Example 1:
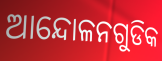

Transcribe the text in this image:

ଆନ୍ଦୋଳନଗୁଡିକ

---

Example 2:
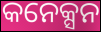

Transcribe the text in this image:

କନେକ୍ସନ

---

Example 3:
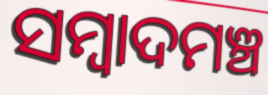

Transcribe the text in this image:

ସମ୍ୱାଦମଞ୍ଚ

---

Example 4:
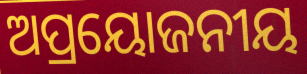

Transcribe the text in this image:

ଅପ୍ରୟୋଜନୀୟ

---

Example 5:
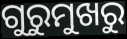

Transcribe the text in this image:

ଗୁରୁମୁଖରୁ